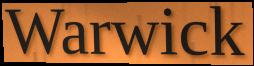
Warwick